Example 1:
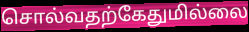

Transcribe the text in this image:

சொல்வதற்கேதுமில்லை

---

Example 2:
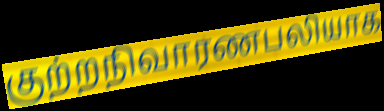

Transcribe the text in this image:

குற்றநிவாரணபலியாக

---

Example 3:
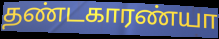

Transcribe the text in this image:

தண்டகாரண்யா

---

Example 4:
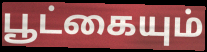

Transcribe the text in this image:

பூட்கையும்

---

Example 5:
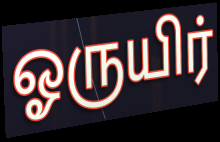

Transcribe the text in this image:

ஓருயிர்